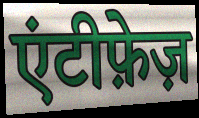
एंटीफ़ेज़